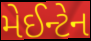
મેઈન્ટેન